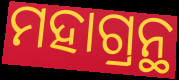
ମହାଗ୍ରନ୍ଥ